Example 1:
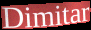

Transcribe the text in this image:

Dimitar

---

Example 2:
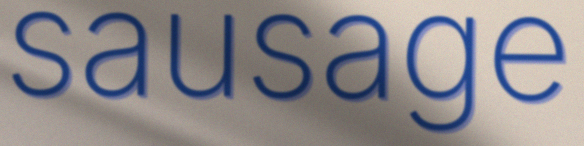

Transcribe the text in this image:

sausage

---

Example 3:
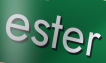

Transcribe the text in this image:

ester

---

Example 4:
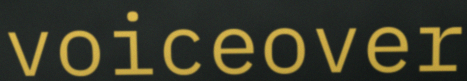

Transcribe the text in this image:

voiceover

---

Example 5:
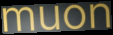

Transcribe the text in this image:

muon